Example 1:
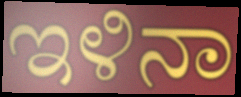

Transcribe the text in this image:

ಇಳಿನಾ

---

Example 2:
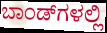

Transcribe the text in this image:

ಬಾಂಡ್‌ಗಳಲ್ಲಿ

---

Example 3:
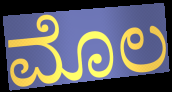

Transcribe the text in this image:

ಮೊಲ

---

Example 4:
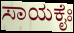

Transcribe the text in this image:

ಸಾಯಕೈಃ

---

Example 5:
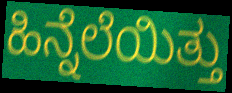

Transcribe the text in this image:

ಹಿನ್ನೆಲೆಯಿತ್ತು